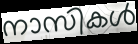
നാസികൾ